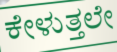
ಕೇಳುತ್ತಲೇ